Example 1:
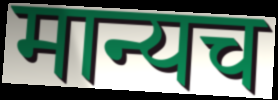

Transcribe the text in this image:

मान्यच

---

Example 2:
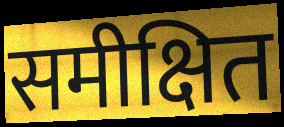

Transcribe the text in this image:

समीक्षित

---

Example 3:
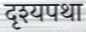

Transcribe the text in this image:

दृश्यपथा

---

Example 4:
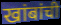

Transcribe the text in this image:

खांबांची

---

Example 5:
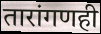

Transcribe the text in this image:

तारांगणही